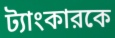
ট্যাংকারকে